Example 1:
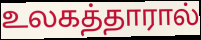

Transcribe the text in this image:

உலகத்தாரால்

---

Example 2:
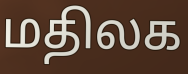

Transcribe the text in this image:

மதிலக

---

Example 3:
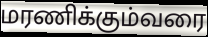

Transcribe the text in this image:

மரணிக்கும்வரை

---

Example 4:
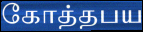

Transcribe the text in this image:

கோத்தபய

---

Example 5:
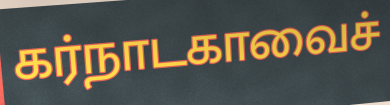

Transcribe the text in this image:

கர்நாடகாவைச்